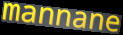
mannane